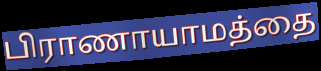
பிராணாயாமத்தை